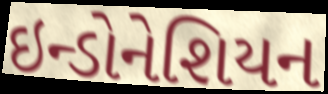
ઇન્ડોનેશિયન